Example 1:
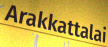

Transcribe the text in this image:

Arakkattalai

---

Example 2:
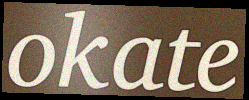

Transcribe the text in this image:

okate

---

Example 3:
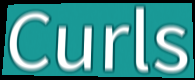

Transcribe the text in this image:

Curls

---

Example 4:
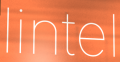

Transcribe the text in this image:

lintel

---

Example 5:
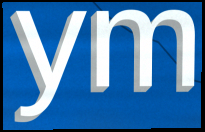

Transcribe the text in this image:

ym